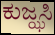
ಕುಜ್ಝಸಿ